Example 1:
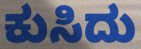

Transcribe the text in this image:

ಕುಸಿದು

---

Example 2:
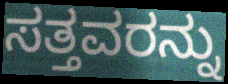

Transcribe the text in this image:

ಸತ್ತವರನ್ನು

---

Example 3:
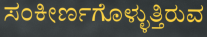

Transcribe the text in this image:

ಸಂಕೀರ್ಣಗೊಳ್ಳುತ್ತಿರುವ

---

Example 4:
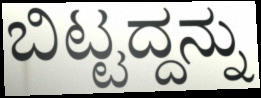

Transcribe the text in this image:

ಬಿಟ್ಟದ್ದನ್ನು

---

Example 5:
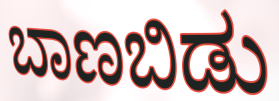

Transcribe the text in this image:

ಬಾಣಬಿಡು